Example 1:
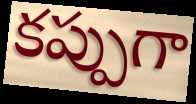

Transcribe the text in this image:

కప్పుగా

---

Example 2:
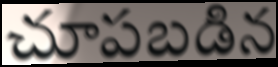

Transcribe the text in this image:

చూపబడిన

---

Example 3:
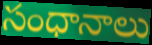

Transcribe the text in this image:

సంధానాలు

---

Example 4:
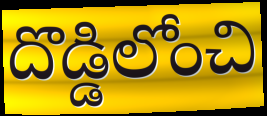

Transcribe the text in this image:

దొడ్డిలోంచి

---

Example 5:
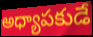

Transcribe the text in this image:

అధ్యాపకుడే